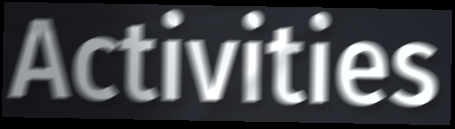
Activities